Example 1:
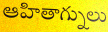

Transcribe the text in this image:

ఆహితాగ్నులు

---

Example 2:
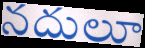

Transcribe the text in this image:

నదులూ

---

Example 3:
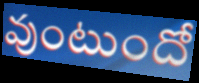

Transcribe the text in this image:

వుంటుందో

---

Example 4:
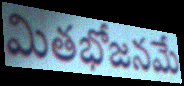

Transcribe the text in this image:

మితభోజనమే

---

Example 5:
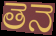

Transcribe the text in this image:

తెనె